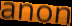
anon